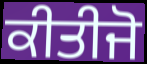
ਕੀਤੀਜੋ